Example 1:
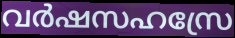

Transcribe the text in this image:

വർഷസഹസ്രേ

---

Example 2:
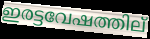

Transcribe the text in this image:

ഇരട്ടവേഷത്തില്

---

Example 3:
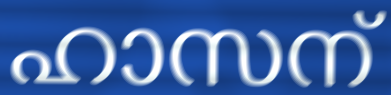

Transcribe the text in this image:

ഹാസന്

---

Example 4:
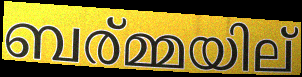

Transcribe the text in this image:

ബര്മ്മയില്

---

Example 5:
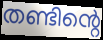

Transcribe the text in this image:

തണ്ടിന്റെ